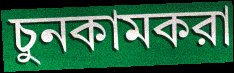
চুনকামকরা